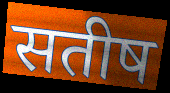
सतीष